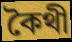
কৈথী